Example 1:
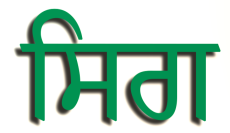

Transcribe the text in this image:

ਸਿਗ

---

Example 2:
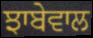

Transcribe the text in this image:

ਝਾਬੇਵਾਲ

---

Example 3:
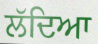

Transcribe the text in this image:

ਲੱਦਿਆ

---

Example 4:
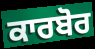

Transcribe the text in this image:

ਕਾਰਬੋਰ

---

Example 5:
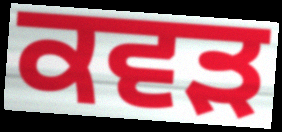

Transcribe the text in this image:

ਕਵੜ